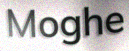
Moghe